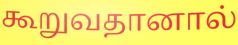
கூறுவதானால்